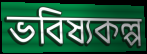
ভবিষ্যকল্প